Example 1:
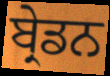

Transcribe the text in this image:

ਬ੍ਰੇਡਨ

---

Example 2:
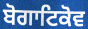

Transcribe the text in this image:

ਬੋਗਾਟਿਕੋਵ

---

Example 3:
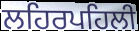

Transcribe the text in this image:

ਲਹਿਰਪਹਿਲੀ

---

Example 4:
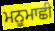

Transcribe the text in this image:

ਮਨੂਮਾਛੀ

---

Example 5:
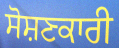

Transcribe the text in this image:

ਸੋਸ਼ਣਕਾਰੀ